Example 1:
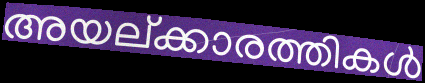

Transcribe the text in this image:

അയല്ക്കാരത്തികൾ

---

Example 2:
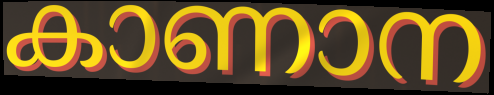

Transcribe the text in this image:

കാണാന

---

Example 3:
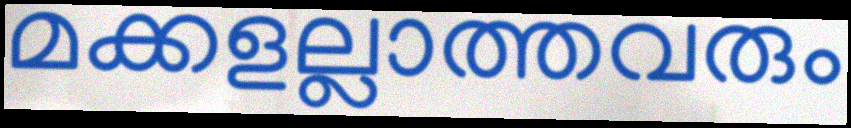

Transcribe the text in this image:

മക്കളല്ലാത്തവരും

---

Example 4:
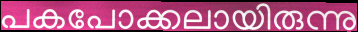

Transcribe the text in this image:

പകപോക്കലായിരുന്നു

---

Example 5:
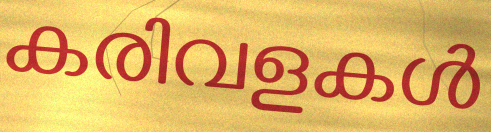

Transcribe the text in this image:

കരിവളകൾ